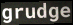
grudge